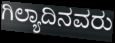
ಗಿಲ್ಯಾದಿನವರು